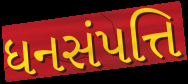
ધનસંપત્તિ